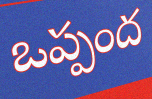
ఒప్పంద